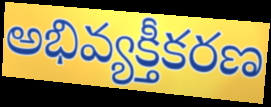
అభివ్యక్తీకరణ